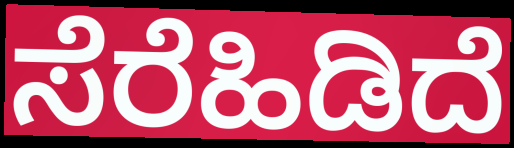
ಸೆರೆಹಿಡಿದೆ